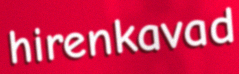
hirenkavad